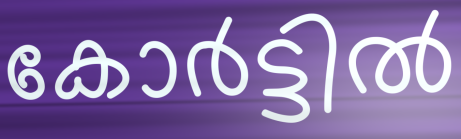
കോർട്ടിൽ